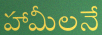
హామీలనే